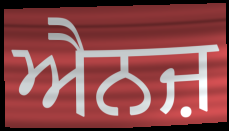
ਐਨਜ਼